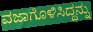
ವಜಾಗೊಳಿಸಿದ್ದನ್ನು